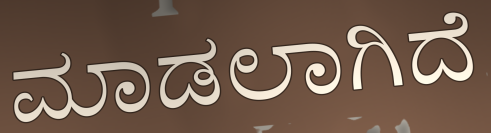
ಮಾಡಲಾಗಿದೆ